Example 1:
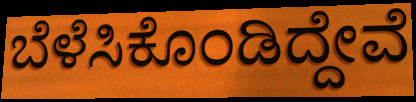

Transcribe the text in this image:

ಬೆಳೆಸಿಕೊಂಡಿದ್ದೇವೆ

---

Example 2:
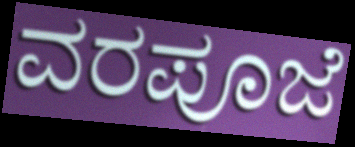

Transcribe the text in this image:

ವರಪೂಜೆ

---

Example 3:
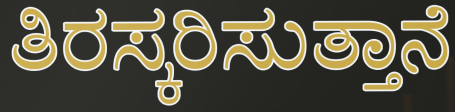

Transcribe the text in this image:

ತಿರಸ್ಕರಿಸುತ್ತಾನೆ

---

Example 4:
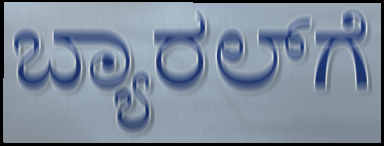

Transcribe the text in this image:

ಬ್ಯಾರಲ್‌ಗೆ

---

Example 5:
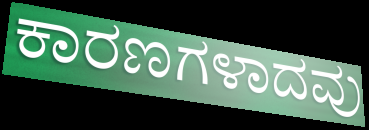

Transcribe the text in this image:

ಕಾರಣಗಳಾದವು